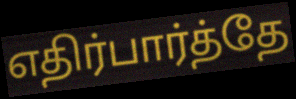
எதிர்பார்த்தே